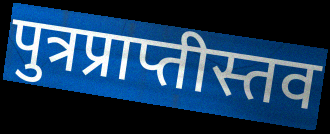
पुत्रप्राप्तीस्तव